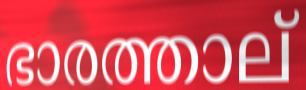
ഭാരത്താല്